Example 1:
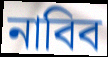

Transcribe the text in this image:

নাবিব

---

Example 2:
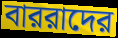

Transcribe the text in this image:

বাররাদের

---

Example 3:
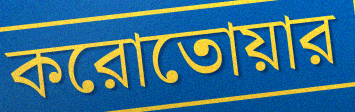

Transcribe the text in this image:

করোতোয়ার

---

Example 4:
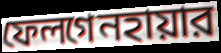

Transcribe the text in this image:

ফেলগেনহায়ার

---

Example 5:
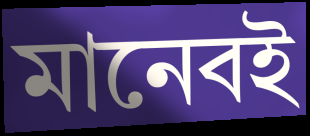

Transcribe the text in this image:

মানেবই